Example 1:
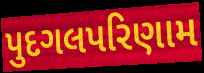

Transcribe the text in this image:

પુદગલપરિણામ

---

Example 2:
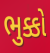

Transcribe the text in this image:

ભુક્કો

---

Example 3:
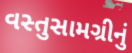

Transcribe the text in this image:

વસ્તુસામગ્રીનું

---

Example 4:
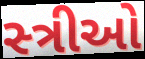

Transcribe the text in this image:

સ્‍ત્રીઓ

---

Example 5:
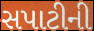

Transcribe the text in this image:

સપાટીની